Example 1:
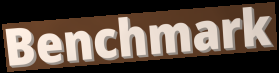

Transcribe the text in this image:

Benchmark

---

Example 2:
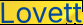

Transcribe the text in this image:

Lovett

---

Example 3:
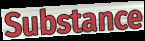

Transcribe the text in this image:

Substance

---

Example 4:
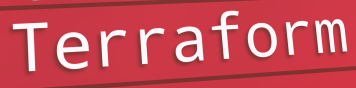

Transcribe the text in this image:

Terraform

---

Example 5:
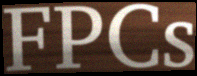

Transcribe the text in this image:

FPCs